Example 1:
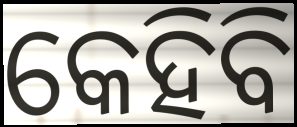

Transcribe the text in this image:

କେହିବି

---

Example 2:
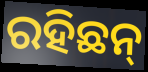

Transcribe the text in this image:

ରହିଛନ୍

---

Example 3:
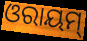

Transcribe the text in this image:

ଓରାୟମ୍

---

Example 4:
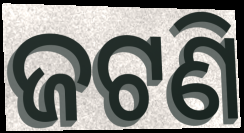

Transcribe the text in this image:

ଜଟଣି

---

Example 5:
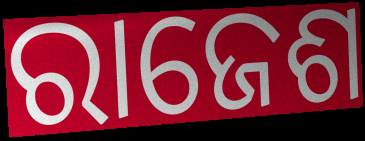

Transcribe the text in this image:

ରାଜେଶ